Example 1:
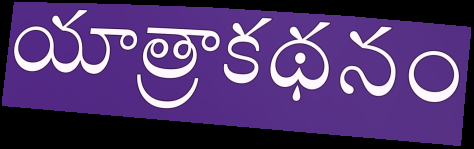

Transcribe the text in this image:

యాత్రాకథనం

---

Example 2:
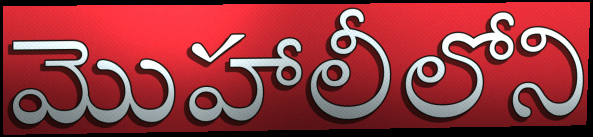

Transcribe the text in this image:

మొహాలీలోని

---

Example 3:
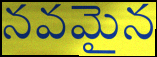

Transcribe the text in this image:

నవమైన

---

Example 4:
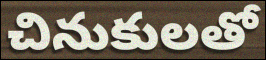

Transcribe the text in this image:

చినుకులతో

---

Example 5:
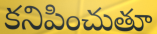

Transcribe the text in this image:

కనిపించుతూ